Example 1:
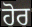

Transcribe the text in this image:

ਹੋਰ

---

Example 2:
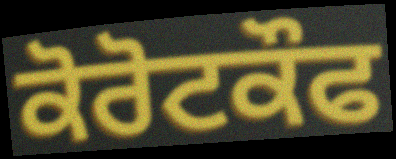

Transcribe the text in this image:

ਕੋਰੋਟਕੌਫ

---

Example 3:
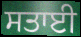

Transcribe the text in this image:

ਸਤਾਈ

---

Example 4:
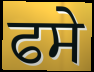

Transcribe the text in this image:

ਫਸੇ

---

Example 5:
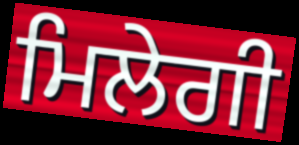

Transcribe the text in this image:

ਮਿਲੇਗੀ